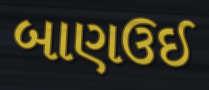
બાણઉઈ